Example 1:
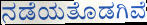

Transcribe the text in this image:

ನಡೆಯತೊಡಗಿವೆ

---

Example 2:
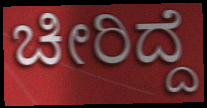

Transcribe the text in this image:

ಚೀರಿದ್ದೆ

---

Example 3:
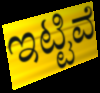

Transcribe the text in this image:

ಇಟ್ಟಿವೆ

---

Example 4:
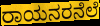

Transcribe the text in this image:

ರಾಯನರನೆಲೆ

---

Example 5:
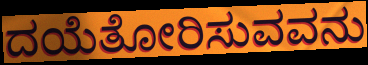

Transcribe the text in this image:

ದಯೆತೋರಿಸುವವನು